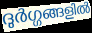
ദുർഗ്ഗങ്ങളിൽ